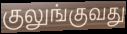
குலுங்குவது